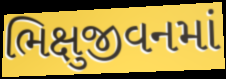
ભિક્ષુજીવનમાં